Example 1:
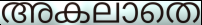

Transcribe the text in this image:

അകലാതെ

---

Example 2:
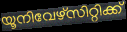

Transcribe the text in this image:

യൂനിവേഴ്സിറ്റിക്ക്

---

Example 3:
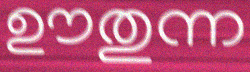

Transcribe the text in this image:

ഊതുന്ന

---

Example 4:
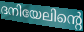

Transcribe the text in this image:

ദനിയേലിന്റെ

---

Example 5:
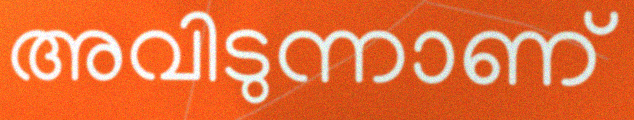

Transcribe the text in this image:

അവിടുന്നാണ്